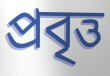
প্রবৃত্ত